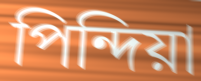
পিন্দিয়া